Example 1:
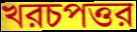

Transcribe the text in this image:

খরচপত্তর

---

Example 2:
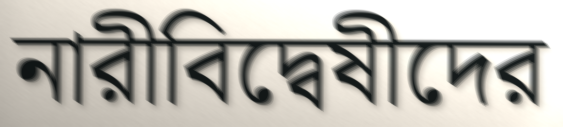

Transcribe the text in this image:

নারীবিদ্বেষীদের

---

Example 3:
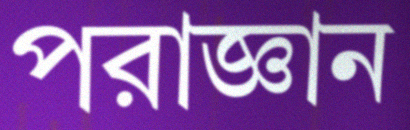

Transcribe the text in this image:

পরাজ্ঞান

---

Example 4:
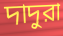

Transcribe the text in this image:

দাদুরা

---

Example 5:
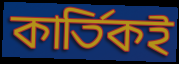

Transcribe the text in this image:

কার্তিকই